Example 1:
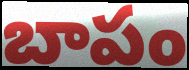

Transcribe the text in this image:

బాపం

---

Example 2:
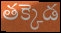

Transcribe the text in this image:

తక్కెడ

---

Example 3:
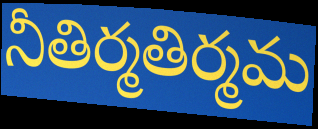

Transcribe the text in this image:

నీతిర్మతిర్మమ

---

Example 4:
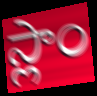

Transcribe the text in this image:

స్లాం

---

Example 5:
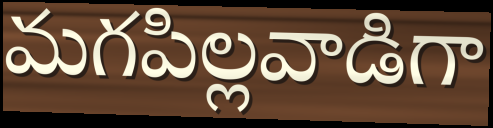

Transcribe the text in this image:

మగపిల్లవాడిగా